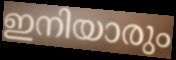
ഇനിയാരും